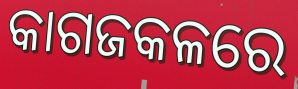
କାଗଜକଳରେ